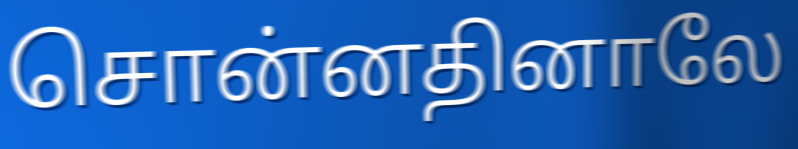
சொன்னதினாலே